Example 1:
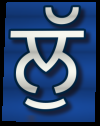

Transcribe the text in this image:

ਲੁੱ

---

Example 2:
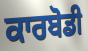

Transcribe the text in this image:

ਕਾਰਬੋਡੀ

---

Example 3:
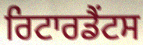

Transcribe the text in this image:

ਰਿਟਾਰਡੈਂਟਸ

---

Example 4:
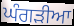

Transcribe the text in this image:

ਘੰਗੜੀਆ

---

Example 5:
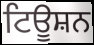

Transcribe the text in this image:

ਟਿਊਸ਼ਨ